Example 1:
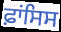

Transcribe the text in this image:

ਫ਼ਾਂਸਿਸ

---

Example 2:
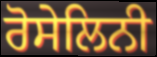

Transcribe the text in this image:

ਰੋਸੇਲਿਨੀ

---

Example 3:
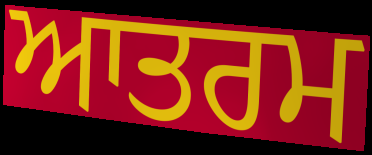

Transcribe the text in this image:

ਆਤਰਮ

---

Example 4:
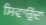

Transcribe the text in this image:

ਸਿਵਾਉਂਦਾ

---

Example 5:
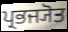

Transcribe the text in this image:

ਪ੍ਰਭਜ੍ਯੋਤ